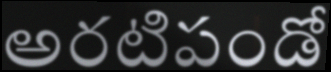
అరటిపండో